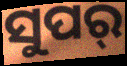
ସୁପର୍